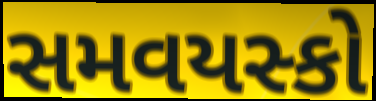
સમવયસ્કો